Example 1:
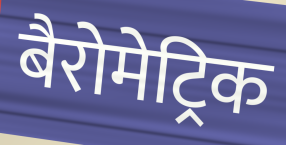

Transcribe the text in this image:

बैरोमेट्रिक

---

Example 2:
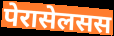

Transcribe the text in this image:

पेरासेलसस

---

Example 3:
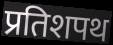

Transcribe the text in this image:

प्रतिशपथ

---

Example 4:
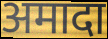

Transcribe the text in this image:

अमादा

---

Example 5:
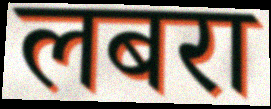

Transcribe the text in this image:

लबरा